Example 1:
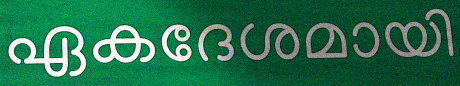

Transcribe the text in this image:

ഏകദേശമായി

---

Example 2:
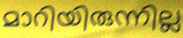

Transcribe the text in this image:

മാറിയിരുന്നില്ല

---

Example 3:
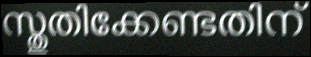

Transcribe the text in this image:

സ്തുതിക്കേണ്ടതിന്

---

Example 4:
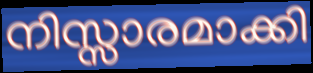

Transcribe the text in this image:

നിസ്സാരമാക്കി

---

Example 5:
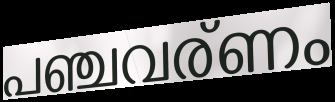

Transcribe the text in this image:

പഞ്ചവര്ണം